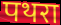
पथरा